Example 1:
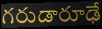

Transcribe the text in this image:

గరుడారూఢే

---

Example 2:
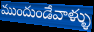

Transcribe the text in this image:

ముందుండేవాళ్ళు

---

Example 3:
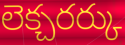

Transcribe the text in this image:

లెక్చరర్కు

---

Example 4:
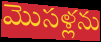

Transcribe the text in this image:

మొసళ్లను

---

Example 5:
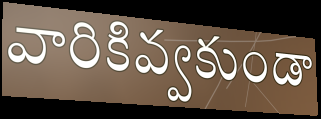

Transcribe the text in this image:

వారికివ్వకుండా